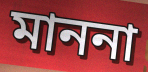
মাননা